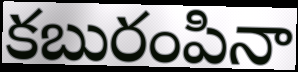
కబురంపినా